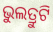
ଭୁଲତ୍ରୁଟି